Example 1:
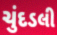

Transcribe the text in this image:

ચુંદડલી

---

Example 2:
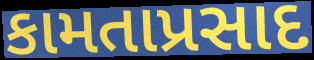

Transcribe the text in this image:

કામતાપ્રસાદ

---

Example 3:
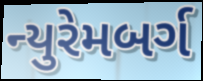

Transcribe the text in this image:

ન્યુરેમબર્ગ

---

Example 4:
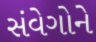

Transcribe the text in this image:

સંવેગોને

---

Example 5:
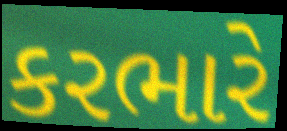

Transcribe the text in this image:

કરભારે